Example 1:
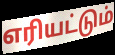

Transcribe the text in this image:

எரியட்டும்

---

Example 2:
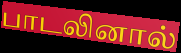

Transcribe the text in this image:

பாடலினால்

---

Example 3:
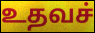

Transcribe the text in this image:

உதவச்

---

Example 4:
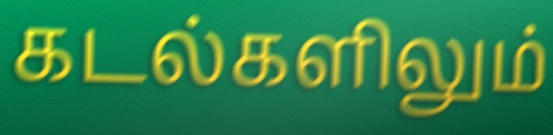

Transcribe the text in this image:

கடல்களிலும்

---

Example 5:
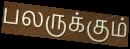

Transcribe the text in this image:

பலருக்கும்